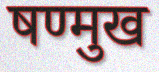
षण्मुख